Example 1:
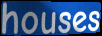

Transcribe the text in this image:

houses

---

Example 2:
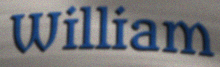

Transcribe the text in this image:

William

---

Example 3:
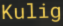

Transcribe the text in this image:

Kulig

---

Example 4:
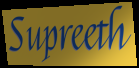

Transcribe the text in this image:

Supreeth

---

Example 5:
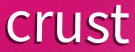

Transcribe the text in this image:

crust